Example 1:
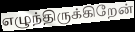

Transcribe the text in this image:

எழுந்திருக்கிறேன்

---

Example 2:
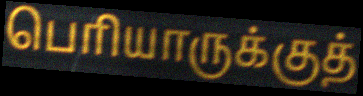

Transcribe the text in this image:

பெரியாருக்குத்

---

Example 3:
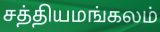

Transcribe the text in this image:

சத்தியமங்கலம்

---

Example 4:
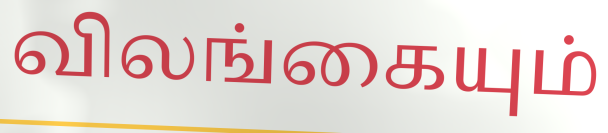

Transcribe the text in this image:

விலங்கையும்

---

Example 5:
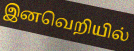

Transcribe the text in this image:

இனவெறியில்